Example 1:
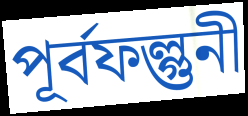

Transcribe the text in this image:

পূর্বফল্গুনী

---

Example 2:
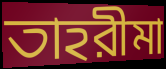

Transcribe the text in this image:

তাহরীমা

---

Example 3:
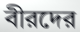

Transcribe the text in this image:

বীরদের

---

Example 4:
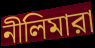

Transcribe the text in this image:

নীলিমারা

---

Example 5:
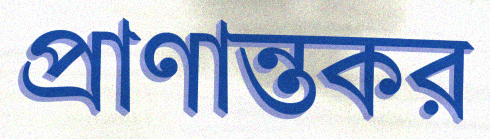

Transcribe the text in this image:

প্রাণান্তকর